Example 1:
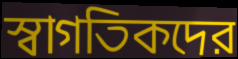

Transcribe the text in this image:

স্বাগতিকদের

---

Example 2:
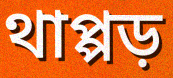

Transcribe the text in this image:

থাপ্পড়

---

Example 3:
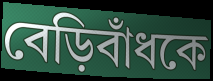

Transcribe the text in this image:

বেড়িবাঁধকে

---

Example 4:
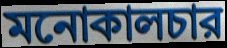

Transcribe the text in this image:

মনোকালচার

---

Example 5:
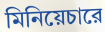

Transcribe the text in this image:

মিনিয়েচারে